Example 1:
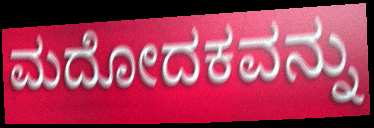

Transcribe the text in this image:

ಮದೋದಕವನ್ನು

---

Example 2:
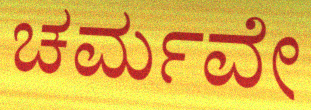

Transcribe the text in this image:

ಚರ್ಮವೇ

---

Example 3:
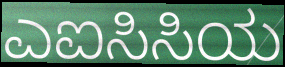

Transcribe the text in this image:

ಎಐಸಿಸಿಯ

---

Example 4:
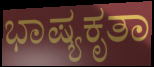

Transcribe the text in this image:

ಭಾಷ್ಯಕೃತಾ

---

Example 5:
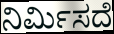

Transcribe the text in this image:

ನಿರ್ಮಿಸದೆ